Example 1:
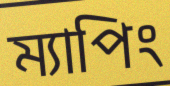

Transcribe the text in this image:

ম্যাপিং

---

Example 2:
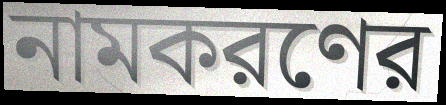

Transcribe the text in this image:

নামকরণের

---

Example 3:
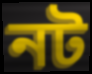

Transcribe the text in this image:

নট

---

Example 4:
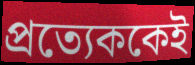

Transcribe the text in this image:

প্রত্যেককেই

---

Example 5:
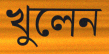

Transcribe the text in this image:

খুলেন